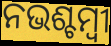
ନଭଶ୍ଚମ୍ବୀ